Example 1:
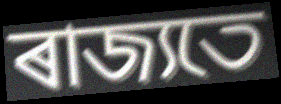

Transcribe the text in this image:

ৰাজ্যতে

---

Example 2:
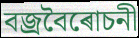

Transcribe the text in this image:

বজ্ৰবৈৰোচনী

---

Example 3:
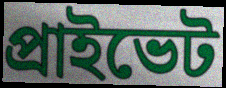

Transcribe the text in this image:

প্ৰাইভেট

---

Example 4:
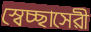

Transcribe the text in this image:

স্বেচ্ছাসেৱী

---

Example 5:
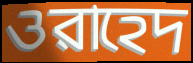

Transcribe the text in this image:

ওৱাহেদ